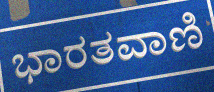
ಭಾರತವಾಣಿ